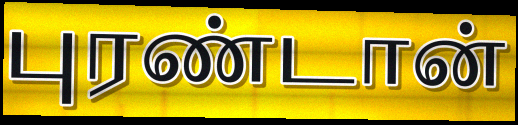
புரண்டான்